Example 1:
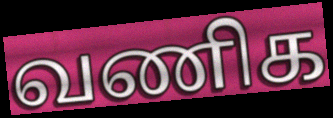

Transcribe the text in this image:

வணிக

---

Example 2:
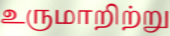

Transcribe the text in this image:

உருமாறிற்று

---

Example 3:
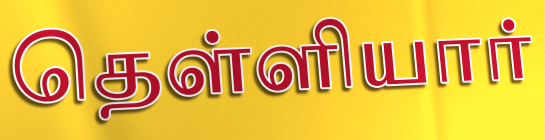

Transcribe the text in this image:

தெள்ளியார்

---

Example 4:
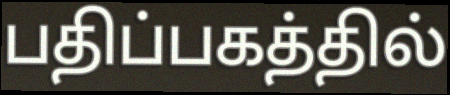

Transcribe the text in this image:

பதிப்பகத்தில்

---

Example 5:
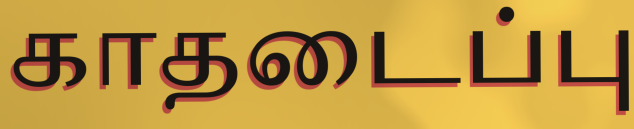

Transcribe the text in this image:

காதடைப்பு